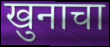
खुनाचा